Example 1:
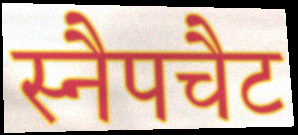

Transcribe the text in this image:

स्नैपचैट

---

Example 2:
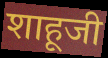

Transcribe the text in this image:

शाहूजी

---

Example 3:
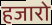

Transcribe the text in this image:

हजारो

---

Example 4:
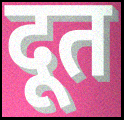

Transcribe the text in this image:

दूत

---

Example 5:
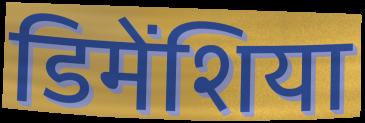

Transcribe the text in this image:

डिमेंशिया